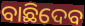
ବାଛିଦେବ